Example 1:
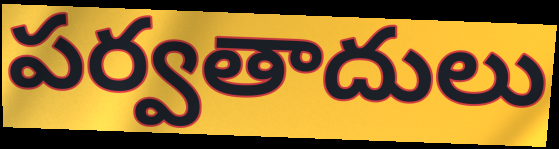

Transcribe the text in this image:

పర్వతాదులు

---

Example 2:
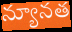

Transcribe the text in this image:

న్యూనత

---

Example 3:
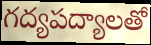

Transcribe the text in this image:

గద్యపద్యాలతో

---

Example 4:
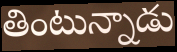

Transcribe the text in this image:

తింటున్నాడు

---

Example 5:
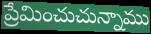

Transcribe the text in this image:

ప్రేమించుచున్నాము